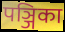
पञ्जिका